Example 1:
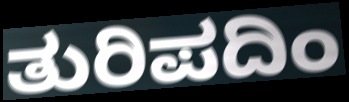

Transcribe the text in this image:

ತುರಿಪದಿಂ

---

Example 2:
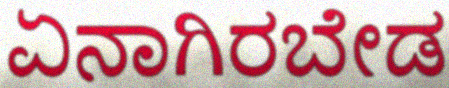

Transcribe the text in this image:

ಏನಾಗಿರಬೇಡ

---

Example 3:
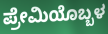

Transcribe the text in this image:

ಪ್ರೇಮಿಯೊಬ್ಬಳ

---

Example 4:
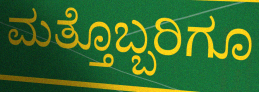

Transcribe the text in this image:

ಮತ್ತೊಬ್ಬರಿಗೂ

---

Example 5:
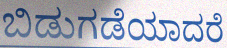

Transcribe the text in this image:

ಬಿಡುಗಡೆಯಾದರೆ